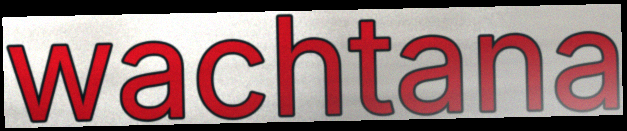
wachtana